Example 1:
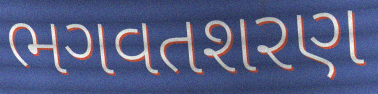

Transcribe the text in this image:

ભગવતશરણ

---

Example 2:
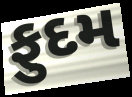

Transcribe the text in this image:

ફુદમ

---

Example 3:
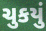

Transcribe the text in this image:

ચુકયું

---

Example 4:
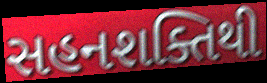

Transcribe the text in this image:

સહનશક્તિથી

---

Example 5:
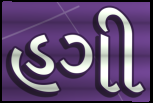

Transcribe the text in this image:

હગી